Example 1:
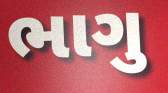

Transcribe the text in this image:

ભાગુ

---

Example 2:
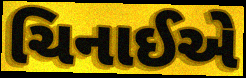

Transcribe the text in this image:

ચિનાઈએ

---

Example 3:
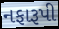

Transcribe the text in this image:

નફારૂપી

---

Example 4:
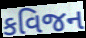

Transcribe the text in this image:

કવિજન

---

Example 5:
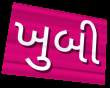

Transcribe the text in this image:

ખુબી